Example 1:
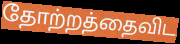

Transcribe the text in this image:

தோற்றத்தைவிட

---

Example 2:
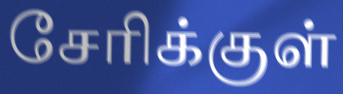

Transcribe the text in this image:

சேரிக்குள்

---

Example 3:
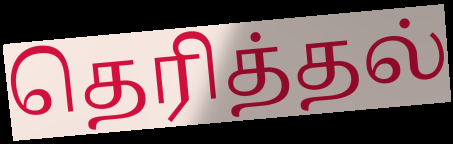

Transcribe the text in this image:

தெரித்தல்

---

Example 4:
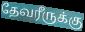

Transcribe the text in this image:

தேவரீருக்கு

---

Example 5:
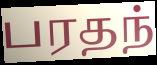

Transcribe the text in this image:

பரதந்